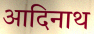
आदिनाथ